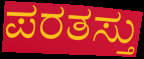
ಪರತಸ್ತು